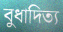
বুধাদিত্য